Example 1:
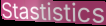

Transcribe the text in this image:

Stastistics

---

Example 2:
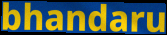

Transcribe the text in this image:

bhandaru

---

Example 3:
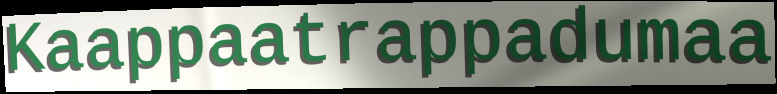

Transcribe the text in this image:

Kaappaatrappadumaa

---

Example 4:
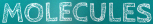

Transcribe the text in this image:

MOLECULES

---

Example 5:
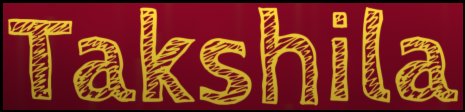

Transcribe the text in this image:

Takshila